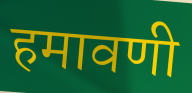
हमावणी